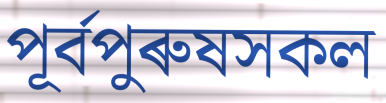
পূৰ্বপুৰুষসকল